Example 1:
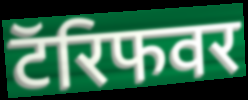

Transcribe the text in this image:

टॅरिफवर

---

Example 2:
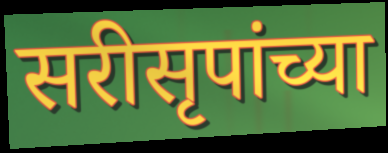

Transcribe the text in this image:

सरीसृपांच्या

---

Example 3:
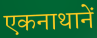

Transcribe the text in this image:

एकनाथानें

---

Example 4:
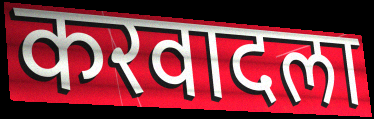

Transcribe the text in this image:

करवादला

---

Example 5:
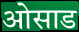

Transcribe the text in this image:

ओसाड